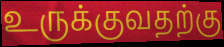
உருக்குவதற்கு